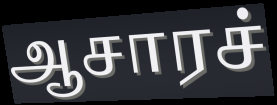
ஆசாரச்